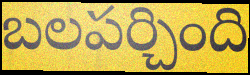
బలపర్చింది